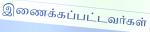
இணைக்கப்பட்டவர்கள்